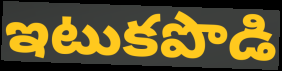
ఇటుకపొడి